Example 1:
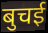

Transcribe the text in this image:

बुचई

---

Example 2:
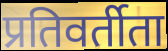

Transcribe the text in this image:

प्रतिवर्तीता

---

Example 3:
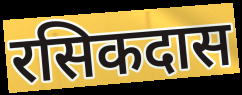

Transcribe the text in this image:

रसिकदास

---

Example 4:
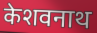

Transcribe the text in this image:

केशवनाथ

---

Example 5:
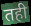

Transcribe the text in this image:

तही